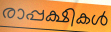
രാപ്പക്ഷികൾ